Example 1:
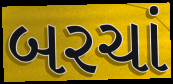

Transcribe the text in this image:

બરચાં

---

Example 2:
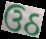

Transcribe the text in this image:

ઉઠ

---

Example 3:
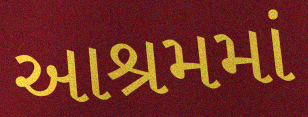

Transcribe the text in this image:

આશ્રમમાં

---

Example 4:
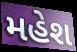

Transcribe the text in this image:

મહેશ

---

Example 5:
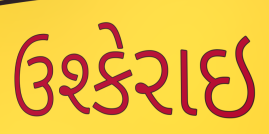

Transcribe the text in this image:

ઉશ્કેરાઇ